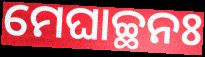
ମେଘାଚ୍ଛନଃ